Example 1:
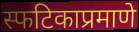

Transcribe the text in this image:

स्फटिकाप्रमाणे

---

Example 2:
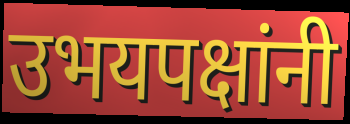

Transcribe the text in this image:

उभयपक्षांनी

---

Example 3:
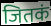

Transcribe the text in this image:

जितकं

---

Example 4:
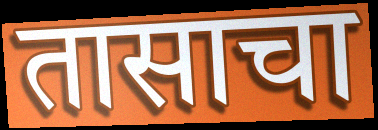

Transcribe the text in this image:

तासाचा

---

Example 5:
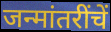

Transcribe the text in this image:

जन्मांतरींचें